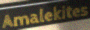
Amalekites